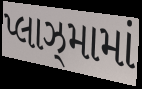
પ્લાઝ્મામાં